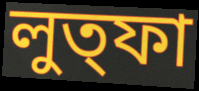
লুত্ফা